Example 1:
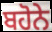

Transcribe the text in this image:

ਬਹੋਨੇ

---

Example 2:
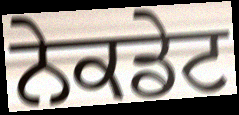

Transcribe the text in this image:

ਨੇਕਡੇਟ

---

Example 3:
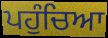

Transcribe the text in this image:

ਪਹੁੰਚਿਆ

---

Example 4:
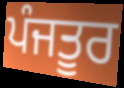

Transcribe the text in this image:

ਪੰਜਤੂਰ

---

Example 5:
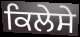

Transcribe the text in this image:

ਕਿਲੇਸੇ